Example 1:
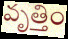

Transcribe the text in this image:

వృత్తిం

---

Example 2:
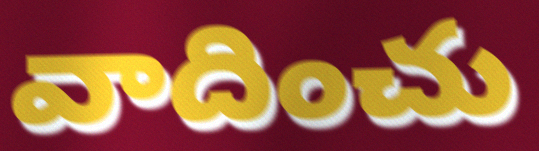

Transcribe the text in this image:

వాదించు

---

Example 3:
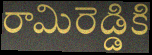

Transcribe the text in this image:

రామిరెడ్డికి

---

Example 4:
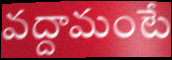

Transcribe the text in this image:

వద్దామంటే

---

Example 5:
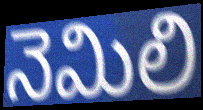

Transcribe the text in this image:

నెమిలి